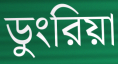
ডুংরিয়া